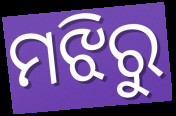
ମଝିରୁ